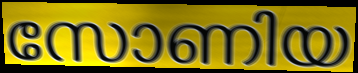
സോണിയ